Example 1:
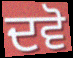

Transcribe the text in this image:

ਦਵੋ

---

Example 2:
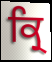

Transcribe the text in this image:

ਕ੍ਰਿ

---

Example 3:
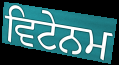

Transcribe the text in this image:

ਵਿਟੇਨਮ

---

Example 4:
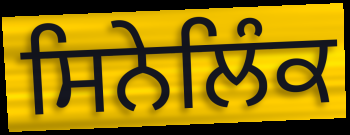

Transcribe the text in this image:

ਸਿਨੇਲਿੰਕ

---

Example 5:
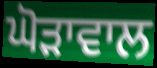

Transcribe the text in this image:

ਘੋੜਾਵਾਲ